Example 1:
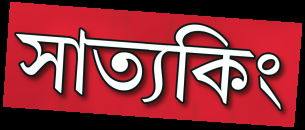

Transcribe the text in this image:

সাত্যকিং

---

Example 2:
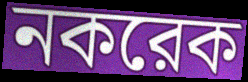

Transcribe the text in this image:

নকরেক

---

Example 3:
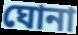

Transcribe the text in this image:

ঘোনা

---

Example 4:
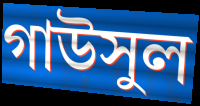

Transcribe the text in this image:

গাউসুল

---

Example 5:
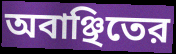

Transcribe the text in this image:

অবাঞ্ছিতের